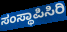
ಸಂಸ್ಥಾಪಿಸಿರಿ